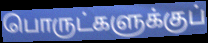
பொருட்களுக்குப்